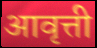
आवृत्ती